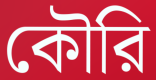
কৌরি